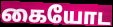
கையோட